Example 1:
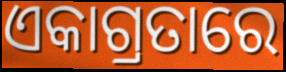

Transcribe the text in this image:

ଏକାଗ୍ରତାରେ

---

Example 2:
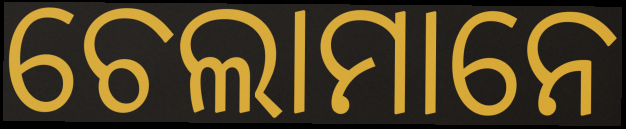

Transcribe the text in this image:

ଚେଲାମାନେ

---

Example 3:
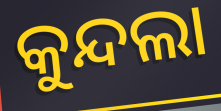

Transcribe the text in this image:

କୁନ୍ଦଲା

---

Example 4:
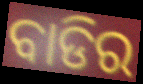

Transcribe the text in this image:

ବାଡିର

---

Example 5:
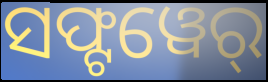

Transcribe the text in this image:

ସଫ୍ଟୱେର୍